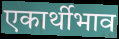
एकार्थीभाव